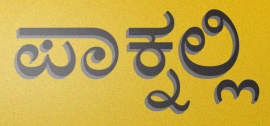
ಪಾಕ್ನಲ್ಲಿ